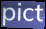
pict